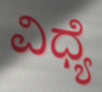
ವಿಧ್ಯೆ